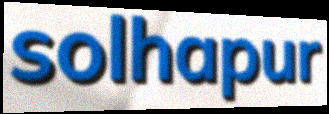
solhapur